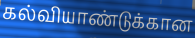
கல்வியாண்டுக்கான